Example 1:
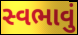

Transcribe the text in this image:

સ્વભાવું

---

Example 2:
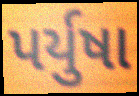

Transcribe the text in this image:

પર્યુષા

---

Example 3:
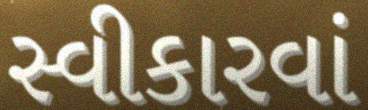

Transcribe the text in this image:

સ્વીકારવાં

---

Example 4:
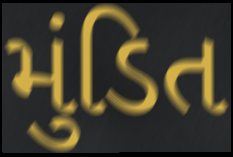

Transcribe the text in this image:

મુંડિત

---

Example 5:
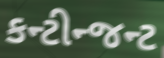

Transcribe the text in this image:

કન્ટીન્જન્ટ